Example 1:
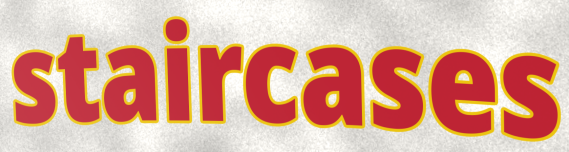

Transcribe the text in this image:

staircases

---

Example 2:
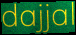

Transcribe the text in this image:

dajjal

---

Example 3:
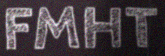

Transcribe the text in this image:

FMHT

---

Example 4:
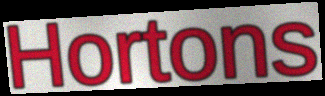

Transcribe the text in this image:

Hortons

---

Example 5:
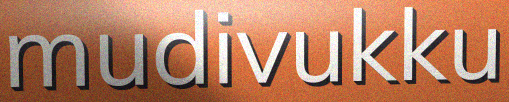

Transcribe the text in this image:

mudivukku